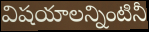
విషయాలన్నింటినీ